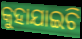
କୁହାଯାଇଚି